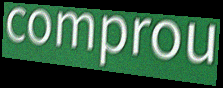
comprou